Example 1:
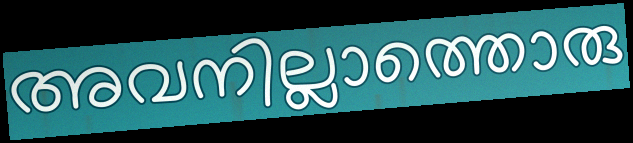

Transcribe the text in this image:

അവനില്ലാത്തൊരു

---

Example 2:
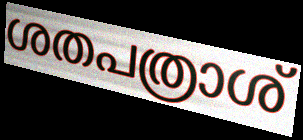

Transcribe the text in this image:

ശതപത്രാശ്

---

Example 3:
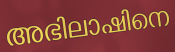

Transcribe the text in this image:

അഭിലാഷിനെ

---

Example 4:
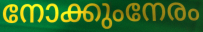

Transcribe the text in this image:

നോക്കുംനേരം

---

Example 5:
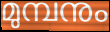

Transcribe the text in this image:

മുമ്പനും